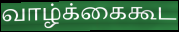
வாழ்க்கைகூட